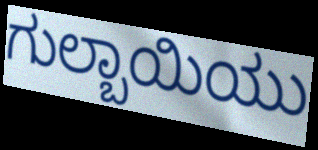
ಗುಲ್ಬಾಯಿಯು